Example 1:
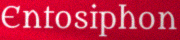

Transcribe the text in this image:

Entosiphon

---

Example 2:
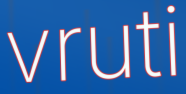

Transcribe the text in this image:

vruti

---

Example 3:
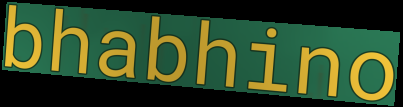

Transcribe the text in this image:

bhabhino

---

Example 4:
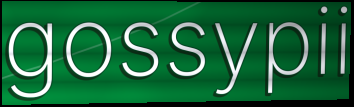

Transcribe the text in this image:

gossypii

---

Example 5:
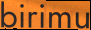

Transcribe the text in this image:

birimu